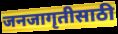
जनजागृतीसाठी